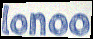
lonoo